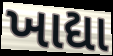
ખાદ્યા